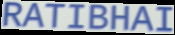
RATIBHAI